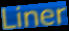
Liner